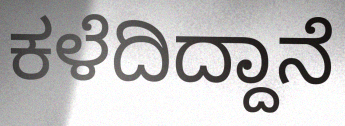
ಕಳೆದಿದ್ದಾನೆ